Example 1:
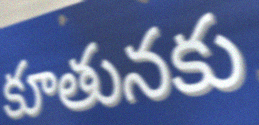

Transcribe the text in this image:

కూతునకు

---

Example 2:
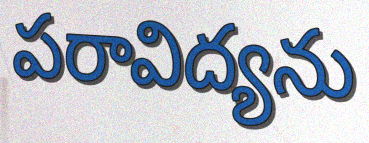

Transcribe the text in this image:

పరావిద్యను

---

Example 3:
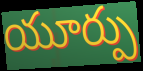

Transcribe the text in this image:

యూర్పు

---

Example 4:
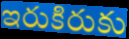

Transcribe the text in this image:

ఇరుకిరుకు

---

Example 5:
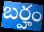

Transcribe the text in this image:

బర్హం